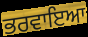
ਭਰਵਾਇਆ